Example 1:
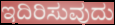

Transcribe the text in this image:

ಇದಿರಿಸುವುದು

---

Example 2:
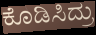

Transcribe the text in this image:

ಕೊಡಿಸಿದ್ರು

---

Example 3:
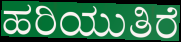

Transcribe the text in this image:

ಹರಿಯುತಿರೆ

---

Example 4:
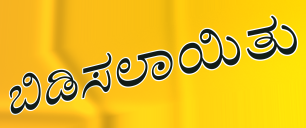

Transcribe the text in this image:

ಬಿಡಿಸಲಾಯಿತು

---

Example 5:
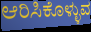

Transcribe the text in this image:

ಆರಿಸಿಕೊಳ್ಳುವ